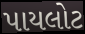
પાયલોટ